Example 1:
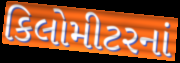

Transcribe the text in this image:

કિલોમીટરનાં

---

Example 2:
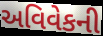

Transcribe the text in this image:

અવિવેકની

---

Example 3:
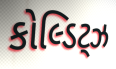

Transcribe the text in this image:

કોલ્ડિટ્ઝ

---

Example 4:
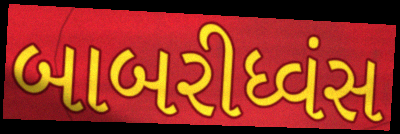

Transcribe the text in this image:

બાબરીધ્વંસ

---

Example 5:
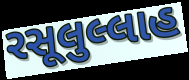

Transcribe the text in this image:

રસૂલુલ્લાહ